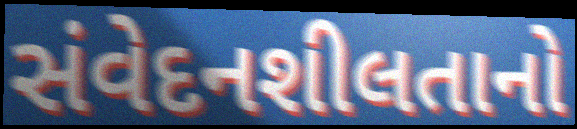
સંવેદનશીલતાનો